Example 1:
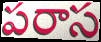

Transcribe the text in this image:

పరాస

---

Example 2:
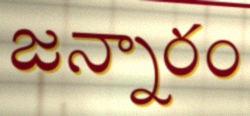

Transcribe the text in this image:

జన్నారం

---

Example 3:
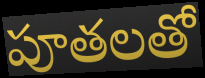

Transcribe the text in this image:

పూతలతో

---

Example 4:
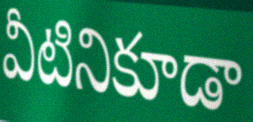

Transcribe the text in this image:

వీటినికూడా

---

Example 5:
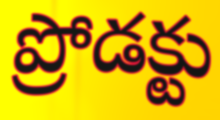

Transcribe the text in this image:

ప్రోడక్టు